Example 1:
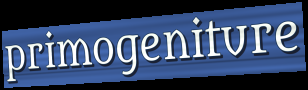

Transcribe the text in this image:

primogeniture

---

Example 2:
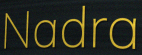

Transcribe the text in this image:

Nadra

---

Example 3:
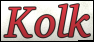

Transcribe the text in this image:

Kolk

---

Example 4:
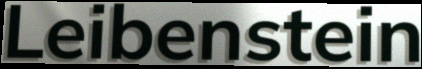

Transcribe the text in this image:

Leibenstein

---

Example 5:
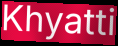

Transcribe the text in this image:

Khyatti